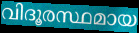
വിദൂരസ്ഥമായ